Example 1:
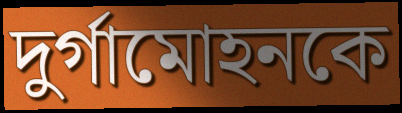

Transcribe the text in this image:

দুর্গামোহনকে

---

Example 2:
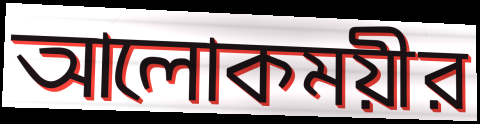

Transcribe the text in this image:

আলোকময়ীর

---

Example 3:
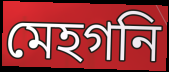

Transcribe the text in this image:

মেহগনি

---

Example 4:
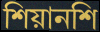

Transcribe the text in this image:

শিয়ানশি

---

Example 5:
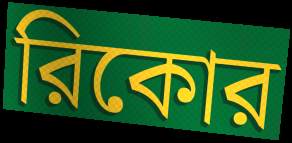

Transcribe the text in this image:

রিকোর